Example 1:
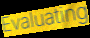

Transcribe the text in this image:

Evaluating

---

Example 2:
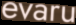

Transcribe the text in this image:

evaru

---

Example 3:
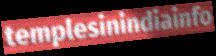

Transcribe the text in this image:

templesinindiainfo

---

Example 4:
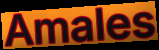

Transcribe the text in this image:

Amales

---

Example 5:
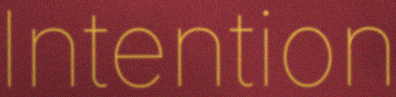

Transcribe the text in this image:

Intention